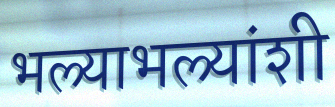
भल्याभल्यांशी